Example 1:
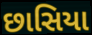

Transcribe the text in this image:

છાસિયા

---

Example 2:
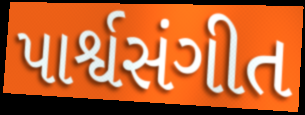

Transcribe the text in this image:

પાર્શ્વસંગીત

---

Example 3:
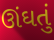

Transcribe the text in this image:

ઊંઘતું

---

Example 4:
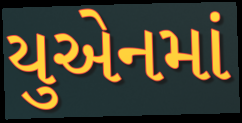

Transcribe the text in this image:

યુએનમાં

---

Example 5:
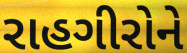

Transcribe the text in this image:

રાહગીરોને